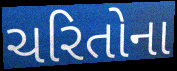
ચરિતોના